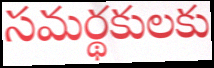
సమర్థకులకు